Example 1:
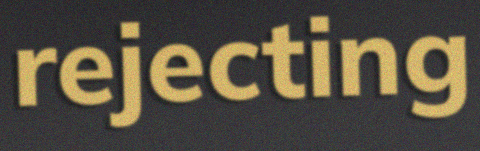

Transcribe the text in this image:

rejecting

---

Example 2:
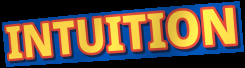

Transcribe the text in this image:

INTUITION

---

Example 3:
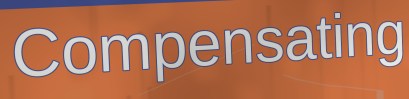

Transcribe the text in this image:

Compensating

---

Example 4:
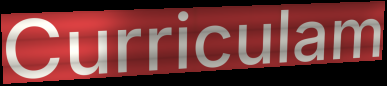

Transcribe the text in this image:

Curriculam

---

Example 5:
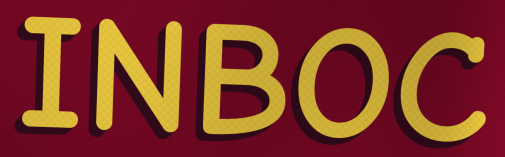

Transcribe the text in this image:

INBOC